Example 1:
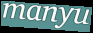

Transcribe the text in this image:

manyu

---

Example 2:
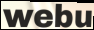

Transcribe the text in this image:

webu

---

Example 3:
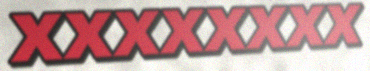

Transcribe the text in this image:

XXXXXXXX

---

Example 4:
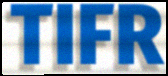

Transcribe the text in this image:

TIFR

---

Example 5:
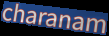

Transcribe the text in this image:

charanam